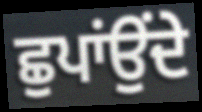
ਛੁਪਾਂਉਂਦੇ